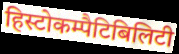
हिस्टोकम्पैटिबिलिटी